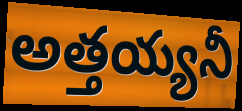
అత్తయ్యనీ